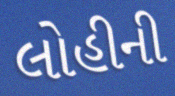
લોહીની